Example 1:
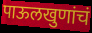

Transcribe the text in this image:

पाऊलखुणांचं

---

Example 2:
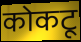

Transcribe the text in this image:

कोकटू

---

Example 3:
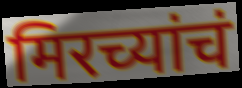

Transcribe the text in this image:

मिरच्यांचं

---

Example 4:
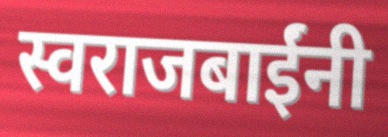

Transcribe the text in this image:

स्वराजबाईंनी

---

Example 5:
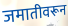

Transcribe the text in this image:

जमातीवरून